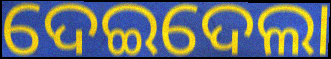
ଦେଇଦେଲା